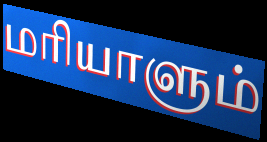
மரியாளும்